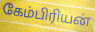
கேம்பிரியன்